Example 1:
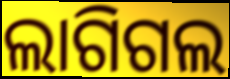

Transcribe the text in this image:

ଲାଗିଗଲ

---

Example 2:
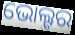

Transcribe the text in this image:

ଭୋଲ୍ଟର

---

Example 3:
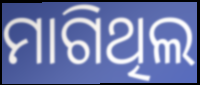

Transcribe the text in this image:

ମାଗିଥିଲ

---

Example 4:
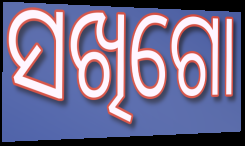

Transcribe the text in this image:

ସଖିଗୋ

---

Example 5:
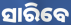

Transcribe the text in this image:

ସାରିବେ